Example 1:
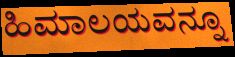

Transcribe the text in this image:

ಹಿಮಾಲಯವನ್ನೂ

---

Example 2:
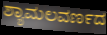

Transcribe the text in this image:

ಶ್ಯಾಮಲವರ್ಣದ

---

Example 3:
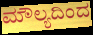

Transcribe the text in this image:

ಮೌಲ್ಯದಿಂದ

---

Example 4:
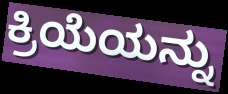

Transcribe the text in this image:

ಕ್ರಿಯೆಯನ್ನು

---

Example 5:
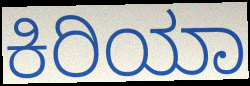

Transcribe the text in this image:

ಕಿರಿಯಾ